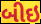
બીઇ